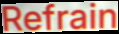
Refrain